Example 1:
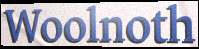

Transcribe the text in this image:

Woolnoth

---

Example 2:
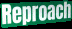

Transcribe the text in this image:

Reproach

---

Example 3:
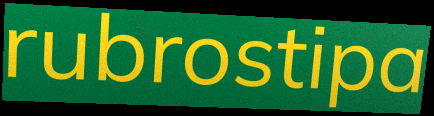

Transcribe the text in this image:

rubrostipa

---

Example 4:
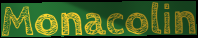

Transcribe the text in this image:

Monacolin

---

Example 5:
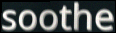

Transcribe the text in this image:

soothe